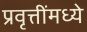
प्रवृत्तींमध्ये